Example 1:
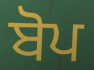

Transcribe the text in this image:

ਬੋਪ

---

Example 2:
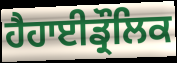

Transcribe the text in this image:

ਹੈਹਾਈਡ੍ਰੌਲਿਕ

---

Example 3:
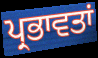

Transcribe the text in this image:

ਪ੍ਰਭਾਵਤਾਂ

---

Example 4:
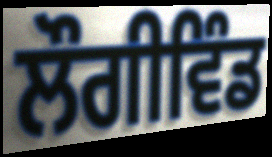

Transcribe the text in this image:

ਲੌਗੀਵਿੰਡ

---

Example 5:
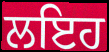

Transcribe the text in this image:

ਲਇਹ